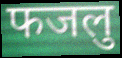
फजलु